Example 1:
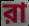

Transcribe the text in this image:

রা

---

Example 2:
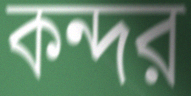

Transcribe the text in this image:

কন্দর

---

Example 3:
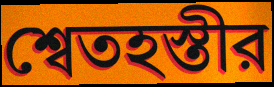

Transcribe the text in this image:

শ্বেতহস্তীর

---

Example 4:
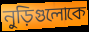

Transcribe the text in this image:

নুড়িগুলোকে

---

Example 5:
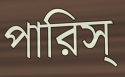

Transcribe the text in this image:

পারিস্